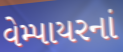
વેમ્પાયરનાં